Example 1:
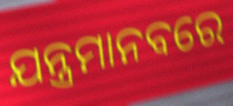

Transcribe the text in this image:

ଯନ୍ତ୍ରମାନବରେ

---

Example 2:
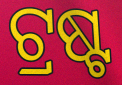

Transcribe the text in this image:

ଟ୍ରଷ୍ଟ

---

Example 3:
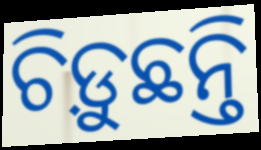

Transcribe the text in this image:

ଚିଡ଼ୁଛନ୍ତି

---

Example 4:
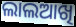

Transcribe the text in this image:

ଲାଲଆଖି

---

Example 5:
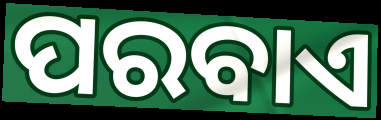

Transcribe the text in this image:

ପରବାଏ